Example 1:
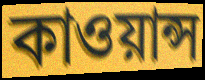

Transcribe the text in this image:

কাওয়ান্স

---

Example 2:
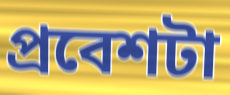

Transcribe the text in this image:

প্রবেশটা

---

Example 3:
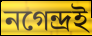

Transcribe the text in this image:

নগেন্দ্রই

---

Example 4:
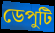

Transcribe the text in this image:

ডেপুটি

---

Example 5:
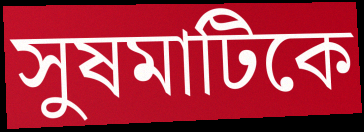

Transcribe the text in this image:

সুষমাটিকে